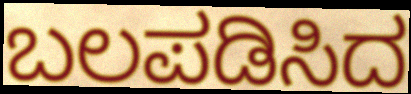
ಬಲಪಡಿಸಿದ